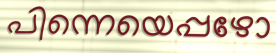
പിന്നെയെപ്പഴോ